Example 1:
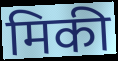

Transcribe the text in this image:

मिकी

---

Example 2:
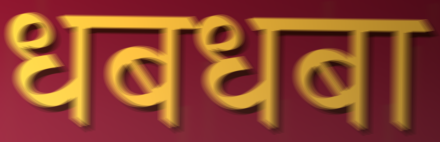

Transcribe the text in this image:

धबधबा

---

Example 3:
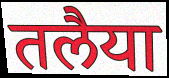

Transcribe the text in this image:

तलैया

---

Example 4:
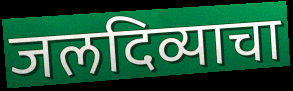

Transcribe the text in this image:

जलदिव्याचा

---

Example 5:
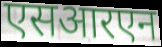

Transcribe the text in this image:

एसआरएन